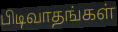
பிடிவாதங்கள்